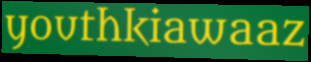
youthkiawaaz